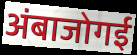
अंबाजोगई